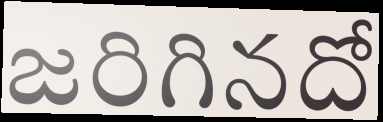
జరిగినదో